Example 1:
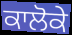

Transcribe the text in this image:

ਕਾਲੋਕੇ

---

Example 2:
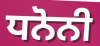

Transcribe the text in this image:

ਧਨੋਨੀ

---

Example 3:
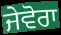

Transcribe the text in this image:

ਜੇਵੋਰਾ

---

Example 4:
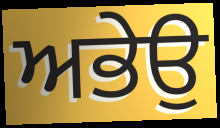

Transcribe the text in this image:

ਅਭੇਉ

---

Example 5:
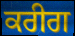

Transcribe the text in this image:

ਕਰੀਗ